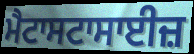
ਮੈਟਾਸਟਾਸਾਈਜ਼